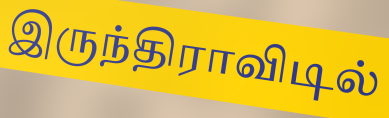
இருந்திராவிடில்